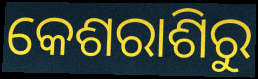
କେଶରାଶିରୁ